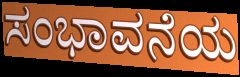
ಸಂಭಾವನೆಯ